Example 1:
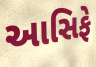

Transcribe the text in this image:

આસિફે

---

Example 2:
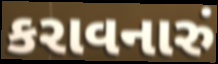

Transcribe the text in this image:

કરાવનારું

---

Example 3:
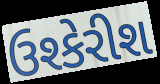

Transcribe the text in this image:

ઉશ્કેરીશ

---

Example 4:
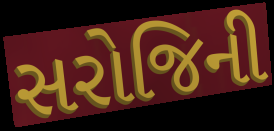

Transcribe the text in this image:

સરોજિની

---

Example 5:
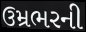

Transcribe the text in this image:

ઉમ્રભરની